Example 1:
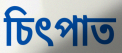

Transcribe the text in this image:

চিৎপাত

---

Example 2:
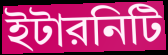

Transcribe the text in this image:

ইটারনিটি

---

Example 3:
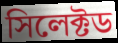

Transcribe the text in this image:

সিলেক্টড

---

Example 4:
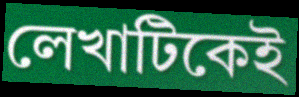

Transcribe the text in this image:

লেখাটিকেই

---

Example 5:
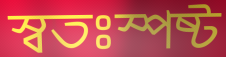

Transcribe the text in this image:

স্বতঃস্পষ্ট